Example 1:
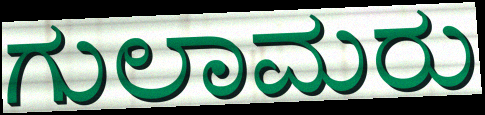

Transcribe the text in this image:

ಗುಲಾಮರು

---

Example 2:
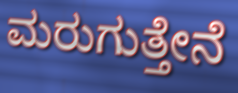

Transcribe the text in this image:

ಮರುಗುತ್ತೇನೆ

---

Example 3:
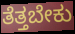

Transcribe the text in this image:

ತೆತ್ತಬೇಕು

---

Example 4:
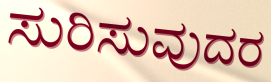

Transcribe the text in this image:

ಸುರಿಸುವುದರ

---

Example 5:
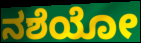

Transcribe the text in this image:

ನಶೆಯೋ